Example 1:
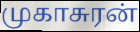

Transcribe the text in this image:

முகாசுரன்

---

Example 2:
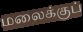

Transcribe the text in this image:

மலைக்குப்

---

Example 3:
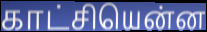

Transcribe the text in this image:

காட்சியென்ன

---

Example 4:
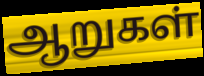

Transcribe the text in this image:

ஆறுகள்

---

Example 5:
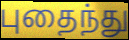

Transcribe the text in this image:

புதைந்து